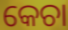
କେଚା